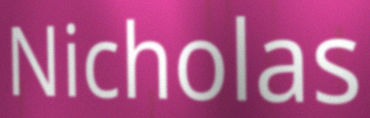
Nicholas